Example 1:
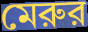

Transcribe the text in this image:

মেরুর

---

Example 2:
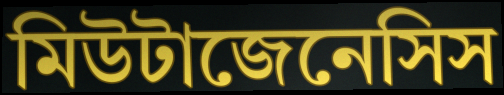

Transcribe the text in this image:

মিউটাজেনেসিস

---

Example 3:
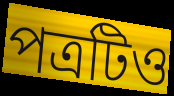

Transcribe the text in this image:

পত্রটিও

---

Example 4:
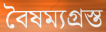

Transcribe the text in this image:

বৈষম্যগ্রস্ত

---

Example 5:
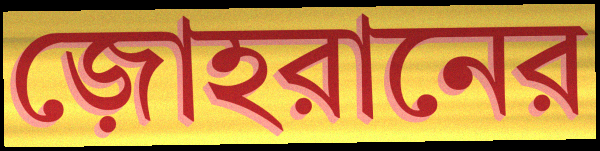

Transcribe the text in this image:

জ়োহরানের